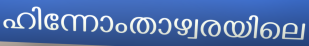
ഹിന്നോംതാഴ്വരയിലെ